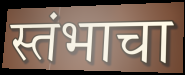
स्तंभाचा